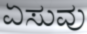
ಏಸುವು